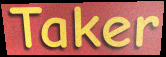
Taker